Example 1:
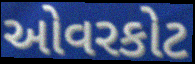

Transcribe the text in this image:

ઓવરકોટ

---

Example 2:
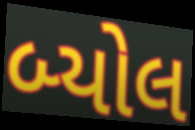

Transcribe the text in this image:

બ્યોલ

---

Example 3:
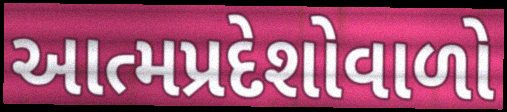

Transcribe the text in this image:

આત્મપ્રદેશોવાળો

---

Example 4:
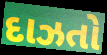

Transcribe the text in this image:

દાઝતો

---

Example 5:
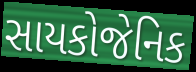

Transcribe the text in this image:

સાયકોજેનિક